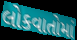
લોકવાતોમાં